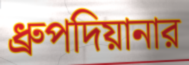
ধ্রুপদিয়ানার